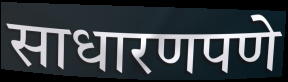
साधारणपणे